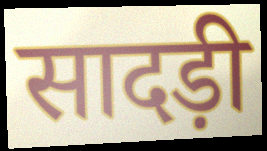
सादड़ी